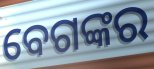
ବେଗଙ୍କର